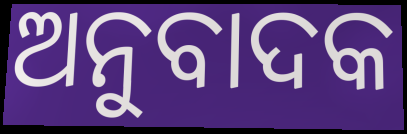
ଅନୁବାଦକ